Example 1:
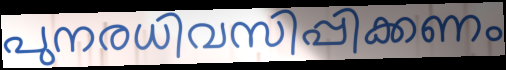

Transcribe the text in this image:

പുനരധിവസിപ്പിക്കണം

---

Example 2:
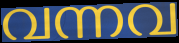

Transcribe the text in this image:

വന്നവ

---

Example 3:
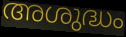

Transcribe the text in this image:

അശുദ്ധം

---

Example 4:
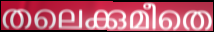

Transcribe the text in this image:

തലെക്കുമീതെ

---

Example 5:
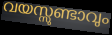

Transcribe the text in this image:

വയസ്സുണ്ടാവും